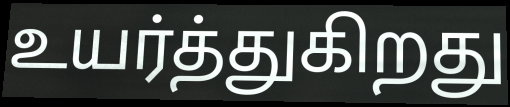
உயர்த்துகிறது